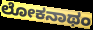
ಲೋಕನಾಥಂ